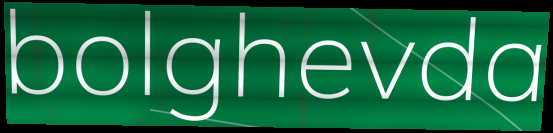
bolghevda